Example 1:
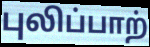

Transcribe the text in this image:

புலிப்பாற்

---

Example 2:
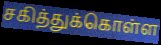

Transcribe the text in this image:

சகித்துக்கொள்ள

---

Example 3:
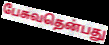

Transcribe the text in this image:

பேசுவதென்பது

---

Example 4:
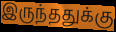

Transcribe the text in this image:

இருந்ததுக்கு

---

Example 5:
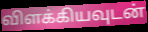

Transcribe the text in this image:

விளக்கியவுடன்